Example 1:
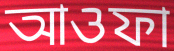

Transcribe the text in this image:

আওফা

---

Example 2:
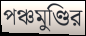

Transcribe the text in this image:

পঞ্চমুণ্ডির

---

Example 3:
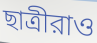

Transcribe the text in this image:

ছাত্রীরাও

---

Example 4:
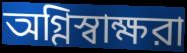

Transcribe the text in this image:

অগ্নিস্বাক্ষরা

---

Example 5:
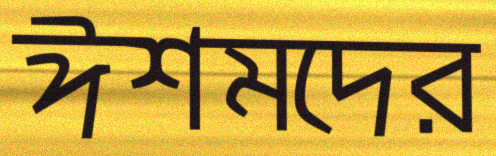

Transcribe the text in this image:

ঈশমদের